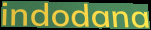
indodana